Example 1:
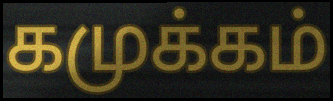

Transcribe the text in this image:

கமுக்கம்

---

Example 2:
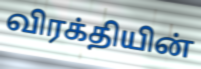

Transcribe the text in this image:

விரக்தியின்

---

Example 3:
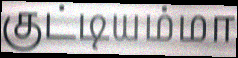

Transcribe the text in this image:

குட்டியம்மா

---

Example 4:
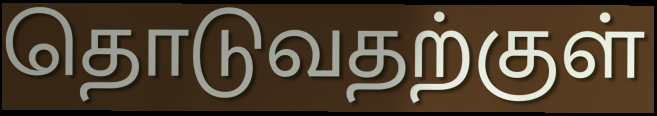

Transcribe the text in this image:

தொடுவதற்குள்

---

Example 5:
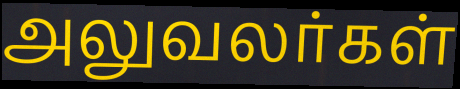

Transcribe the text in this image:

அலுவலர்கள்